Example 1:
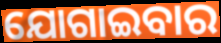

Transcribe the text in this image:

ଯୋଗାଇବାର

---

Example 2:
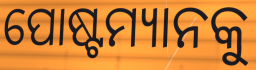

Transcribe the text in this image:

ପୋଷ୍ଟମ୍ୟାନକୁ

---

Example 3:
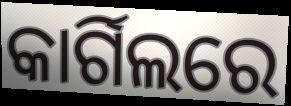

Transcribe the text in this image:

କାର୍ଗିଲରେ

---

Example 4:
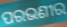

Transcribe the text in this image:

ପରଭଣୀର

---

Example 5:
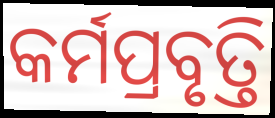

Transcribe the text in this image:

କର୍ମପ୍ରବୃତ୍ତି